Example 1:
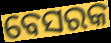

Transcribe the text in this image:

ବେସରକ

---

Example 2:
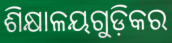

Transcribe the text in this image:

ଶିକ୍ଷାଳୟଗୁଡ଼ିକର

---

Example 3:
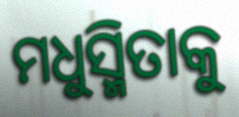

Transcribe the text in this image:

ମଧୁସ୍ମିତାକୁ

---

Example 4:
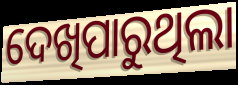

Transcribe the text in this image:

ଦେଖିପାରୁଥିଲା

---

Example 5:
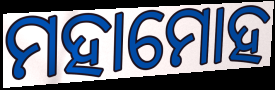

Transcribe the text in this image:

ମହାମୋହ